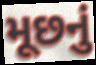
મૂછનું